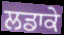
ਲਡਾਕੇ